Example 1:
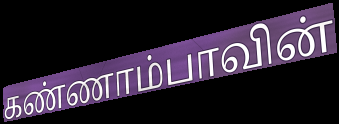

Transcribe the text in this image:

கண்ணாம்பாவின்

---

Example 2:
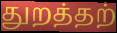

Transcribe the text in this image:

துறத்தற்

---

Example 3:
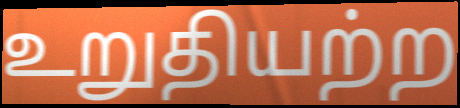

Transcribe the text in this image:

உறுதியற்ற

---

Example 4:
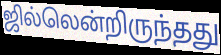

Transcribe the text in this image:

ஜில்லென்றிருந்தது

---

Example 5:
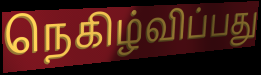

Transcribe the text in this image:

நெகிழ்விப்பது